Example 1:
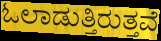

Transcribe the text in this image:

ಓಲಾಡುತ್ತಿರುತ್ತವೆ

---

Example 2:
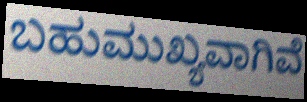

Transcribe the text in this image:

ಬಹುಮುಖ್ಯವಾಗಿವೆ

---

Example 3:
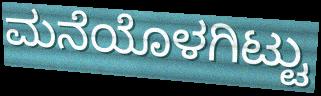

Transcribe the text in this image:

ಮನೆಯೊಳಗಿಟ್ಟು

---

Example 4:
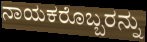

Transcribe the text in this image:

ನಾಯಕರೊಬ್ಬರನ್ನು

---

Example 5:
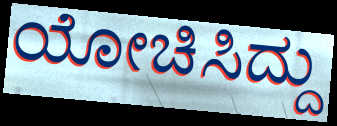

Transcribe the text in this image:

ಯೋಚಿಸಿದ್ದು